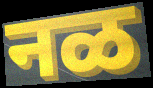
नळ